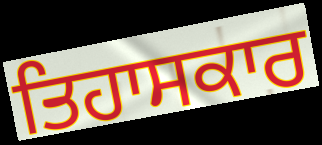
ਤਿਹਾਸਕਾਰ